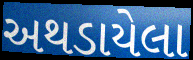
અથડાયેલા